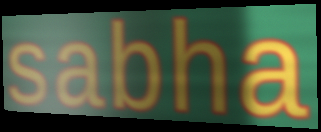
sabha